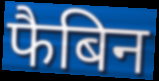
फैबिन